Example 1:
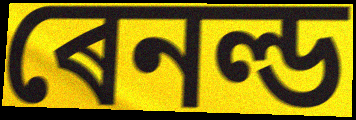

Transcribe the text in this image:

ৰেনল্ড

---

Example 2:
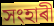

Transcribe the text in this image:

সংহাৰী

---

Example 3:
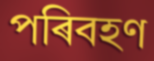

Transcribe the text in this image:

পৰিবহণ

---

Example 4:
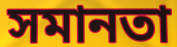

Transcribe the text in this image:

সমানতা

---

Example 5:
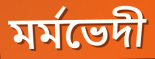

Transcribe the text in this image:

মৰ্মভেদী